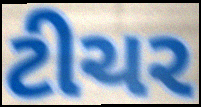
ટીચર